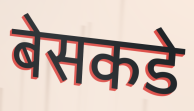
बेसकडे